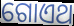
ଗୋଏଥ